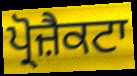
ਪ੍ਰੋਜ਼ੈਕਟਾ